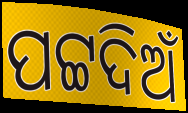
ପଟ୍ଟଦିଅଁ